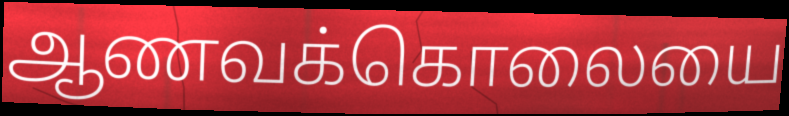
ஆணவக்கொலையை